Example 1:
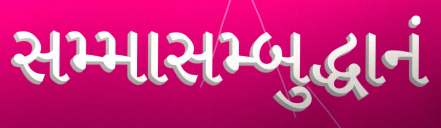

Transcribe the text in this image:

સમ્માસમ્બુદ્ધાનં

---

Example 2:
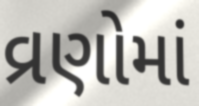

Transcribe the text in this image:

વ્રણોમાં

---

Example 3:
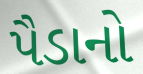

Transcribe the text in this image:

પૈડાનો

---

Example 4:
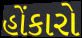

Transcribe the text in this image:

હોંકારો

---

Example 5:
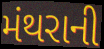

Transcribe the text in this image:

મંથરાની